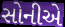
સોનીએ